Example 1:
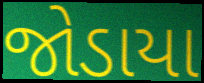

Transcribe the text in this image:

જોડાયા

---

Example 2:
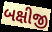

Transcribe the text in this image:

બક્ષીજી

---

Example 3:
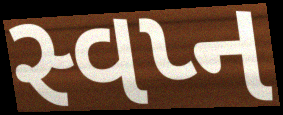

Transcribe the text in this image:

સ્વપ્ન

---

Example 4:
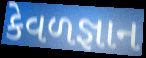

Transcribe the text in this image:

કેવળજ્ઞાન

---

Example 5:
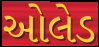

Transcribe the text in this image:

ઓલેડ